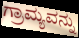
ಗ್ರಾಮ್ಯವನ್ನು